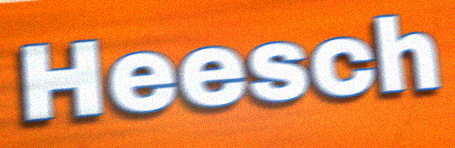
Heesch